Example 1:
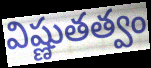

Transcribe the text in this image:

విష్ణుతత్వం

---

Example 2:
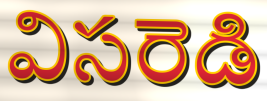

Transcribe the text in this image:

విసరెడి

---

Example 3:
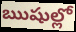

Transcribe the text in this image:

ఋషుల్లో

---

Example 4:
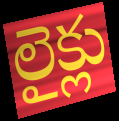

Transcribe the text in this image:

లైక్లు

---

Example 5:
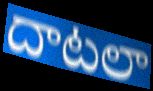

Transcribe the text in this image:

దాటలా